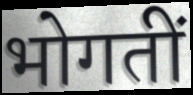
भोगतीं